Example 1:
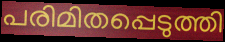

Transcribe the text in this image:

പരിമിതപ്പെടുത്തി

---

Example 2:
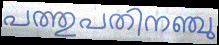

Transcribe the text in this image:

പത്തുപതിനഞ്ചു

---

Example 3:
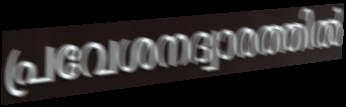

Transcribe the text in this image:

പ്രവേശനദ്വാരത്തിൽ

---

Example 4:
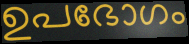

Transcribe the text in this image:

ഉപഭോഗം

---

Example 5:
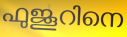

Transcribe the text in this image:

ഫുജൂറിനെ